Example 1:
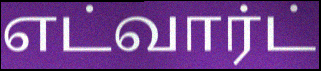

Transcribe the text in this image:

எட்வார்ட்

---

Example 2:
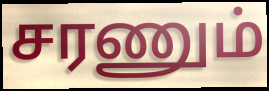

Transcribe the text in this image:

சரணும்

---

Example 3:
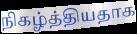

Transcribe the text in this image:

நிகழ்த்தியதாக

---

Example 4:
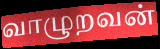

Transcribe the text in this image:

வாழுறவன்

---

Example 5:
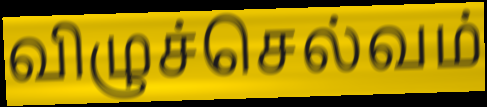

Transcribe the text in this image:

விழுச்செல்வம்